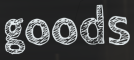
goods